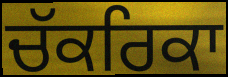
ਚੱਕਰਿਕਾ